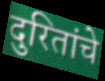
दुरितांचे